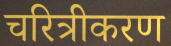
चरित्रीकरण